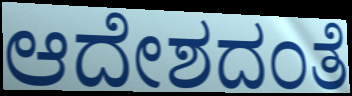
ಆದೇಶದಂತೆ